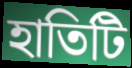
হাতিটি